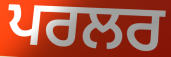
ਪਰਲਰ